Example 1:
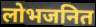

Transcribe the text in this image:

लोभजनित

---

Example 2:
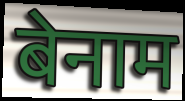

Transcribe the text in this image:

बेनाम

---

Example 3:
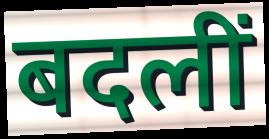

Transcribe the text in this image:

बदलीं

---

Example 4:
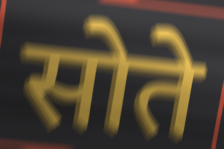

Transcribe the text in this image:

सोते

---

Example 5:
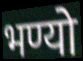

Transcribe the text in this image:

भण्यो